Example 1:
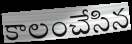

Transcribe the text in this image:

కాలంచేసిన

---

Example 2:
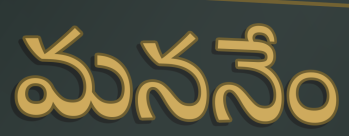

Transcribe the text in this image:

మననేం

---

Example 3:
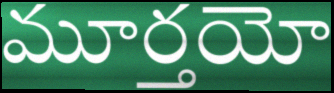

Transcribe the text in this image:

మూర్తయో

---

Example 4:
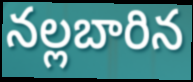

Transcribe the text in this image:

నల్లబారిన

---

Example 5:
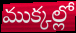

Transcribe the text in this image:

ముక్కల్లో